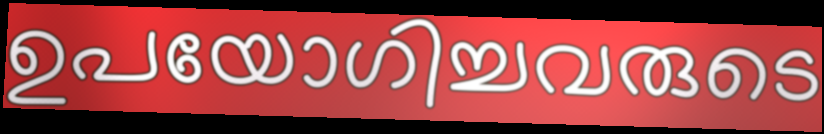
ഉപയോഗിച്ചവരുടെ